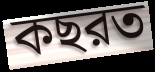
কছরত